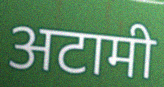
अटामी